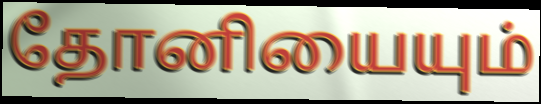
தோனியையும்